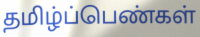
தமிழ்ப்பெண்கள்